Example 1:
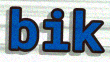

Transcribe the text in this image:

bik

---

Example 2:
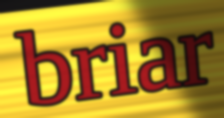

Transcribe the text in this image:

briar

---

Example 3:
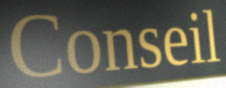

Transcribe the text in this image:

Conseil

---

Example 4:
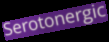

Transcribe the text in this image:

Serotonergic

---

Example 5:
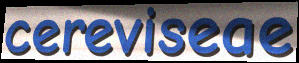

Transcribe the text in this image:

cereviseae